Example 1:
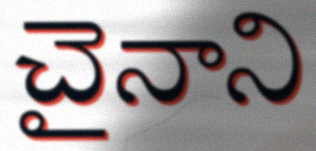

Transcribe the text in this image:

చైనాని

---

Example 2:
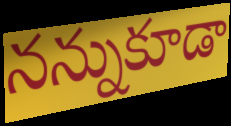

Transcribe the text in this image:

నన్నుకూడా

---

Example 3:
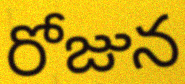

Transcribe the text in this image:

రోజున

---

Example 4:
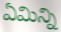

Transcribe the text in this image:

ఏమిన్ని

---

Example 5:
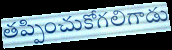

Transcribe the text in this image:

తప్పించుకోగలిగాడు